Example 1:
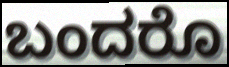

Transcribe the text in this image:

ಬಂದರೊ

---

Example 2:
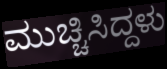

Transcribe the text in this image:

ಮುಚ್ಚಿಸಿದ್ದಳು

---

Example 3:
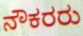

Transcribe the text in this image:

ನೌಕರರು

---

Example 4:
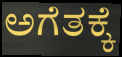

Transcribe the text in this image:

ಅಗೆತಕ್ಕೆ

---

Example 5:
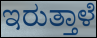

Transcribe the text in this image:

ಇರುತ್ತಾಳೆ